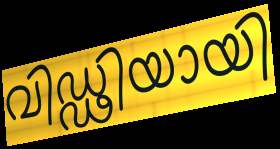
വിഡ്ഢിയായി